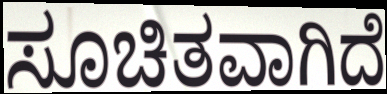
ಸೂಚಿತವಾಗಿದೆ